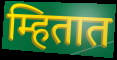
म्हितात